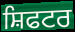
ਸ਼ਿਫਟਰ